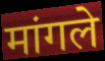
मांगले